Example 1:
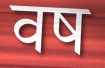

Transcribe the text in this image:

वष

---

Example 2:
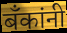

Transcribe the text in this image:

बॅंकांनी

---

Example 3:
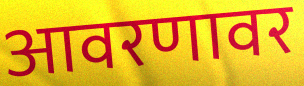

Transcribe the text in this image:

आवरणावर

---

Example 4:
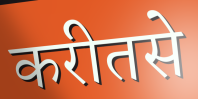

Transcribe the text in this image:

करीतसे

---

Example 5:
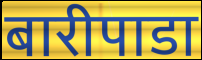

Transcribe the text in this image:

बारीपाडा